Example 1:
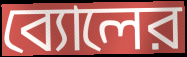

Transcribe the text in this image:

ব্যোলের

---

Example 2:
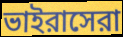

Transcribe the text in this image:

ভাইরাসেরা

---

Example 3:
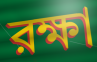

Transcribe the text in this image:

রক্ষা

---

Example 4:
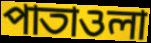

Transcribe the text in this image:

পাতাওলা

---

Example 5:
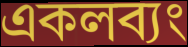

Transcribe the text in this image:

একলব্যং